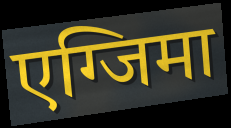
एग्जिमा